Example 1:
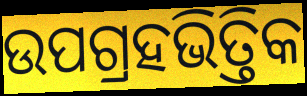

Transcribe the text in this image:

ଉପଗ୍ରହଭିତ୍ତିକ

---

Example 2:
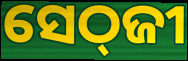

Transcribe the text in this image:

ସେଠ୍‌ଜୀ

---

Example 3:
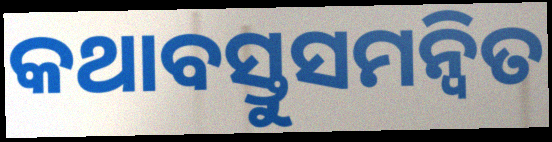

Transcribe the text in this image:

କଥାବସ୍ତୁସମନ୍ୱିତ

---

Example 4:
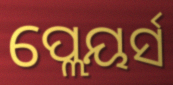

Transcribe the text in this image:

ପ୍ଲେୟର୍ସ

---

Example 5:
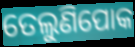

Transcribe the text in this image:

ତେଲୁଣିପୋକ